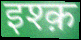
इश्क़